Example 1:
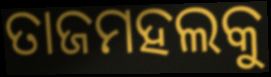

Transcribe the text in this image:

ତାଜମହଲକୁ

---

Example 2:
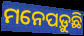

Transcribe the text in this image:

ମନେପଡ଼ୁଛି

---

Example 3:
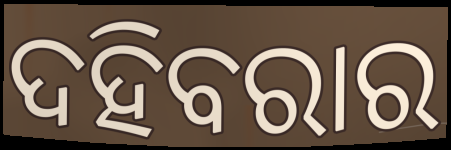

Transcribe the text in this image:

ଦହିବରାର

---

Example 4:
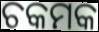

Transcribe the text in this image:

ଚକମକ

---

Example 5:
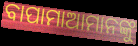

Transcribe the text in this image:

ବାପାମାଆମାନଙ୍କୁ